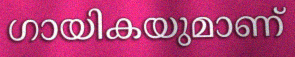
ഗായികയുമാണ്